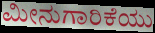
ಮೀನುಗಾರಿಕೆಯು